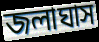
জলাঘাস